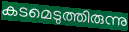
കടമെടുത്തിരുന്നു